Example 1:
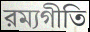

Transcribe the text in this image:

রম্যগীতি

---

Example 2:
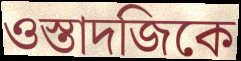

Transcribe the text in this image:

ওস্তাদজিকে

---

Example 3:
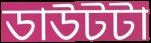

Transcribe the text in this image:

ডাউটটা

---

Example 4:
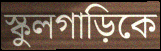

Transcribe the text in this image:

স্কুলগাড়িকে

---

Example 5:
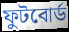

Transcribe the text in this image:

ফুটবোর্ড